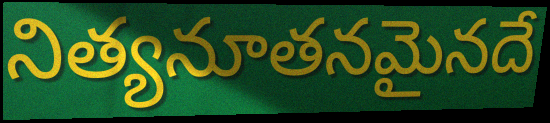
నిత్యనూతనమైనదే